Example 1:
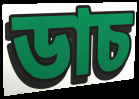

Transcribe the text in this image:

ডাচ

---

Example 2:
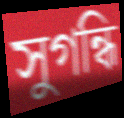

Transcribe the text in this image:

সুগন্ধি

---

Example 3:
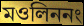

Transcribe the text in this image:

মওলিননং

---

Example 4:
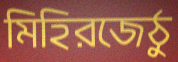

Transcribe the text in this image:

মিহিরজেঠু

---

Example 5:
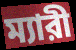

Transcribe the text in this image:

ম্যারী